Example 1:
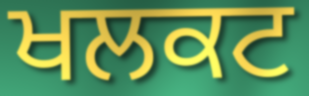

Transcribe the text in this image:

ਖਲਕਟ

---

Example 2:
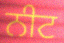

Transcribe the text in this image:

ਨੀਟ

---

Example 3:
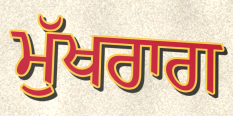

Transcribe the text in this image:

ਮੁੱਖਰਾਗ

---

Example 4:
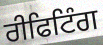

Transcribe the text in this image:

ਰੀਫਿਟਿੰਗ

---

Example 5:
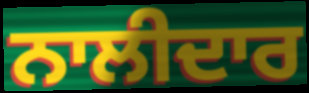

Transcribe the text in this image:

ਨਾਲੀਦਾਰ